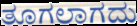
ತೂಗಲಾಗದು